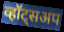
व्हॉट्सअप